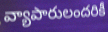
వ్యాపారులందరికీ